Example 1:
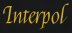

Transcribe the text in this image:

Interpol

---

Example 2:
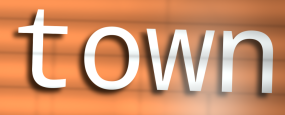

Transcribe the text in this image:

town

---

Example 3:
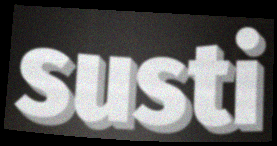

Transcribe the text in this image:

susti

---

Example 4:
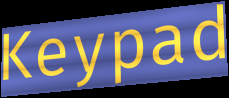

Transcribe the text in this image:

Keypad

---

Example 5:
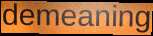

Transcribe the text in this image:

demeaning